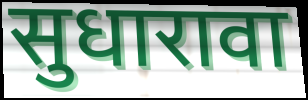
सुधारावा